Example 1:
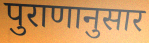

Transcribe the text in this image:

पुराणानुसार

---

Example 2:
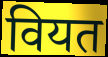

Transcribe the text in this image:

वियत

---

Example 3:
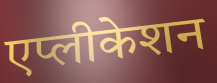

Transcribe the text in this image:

एप्‍लीकेशन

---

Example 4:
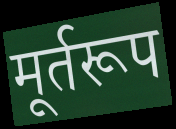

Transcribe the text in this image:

मूर्तरूप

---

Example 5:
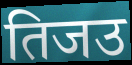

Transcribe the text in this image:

तिजउ